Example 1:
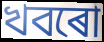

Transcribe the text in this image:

খবৰো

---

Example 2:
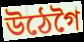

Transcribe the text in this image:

উঠেগৈ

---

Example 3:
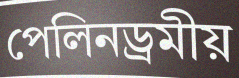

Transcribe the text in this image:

পেলিনড্ৰমীয়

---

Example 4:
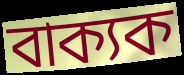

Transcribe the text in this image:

বাক্যক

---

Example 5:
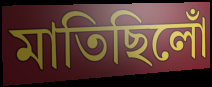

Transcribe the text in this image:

মাতিছিলোঁ